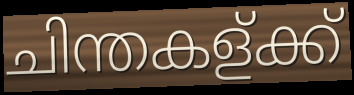
ചിന്തകള്ക്ക്